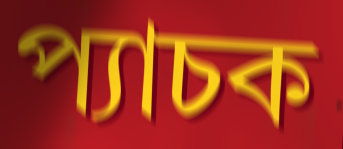
প্যাচক